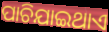
ପାଚିଯାଇଥାଏ